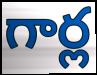
గార్ల